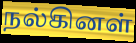
நல்கினள்